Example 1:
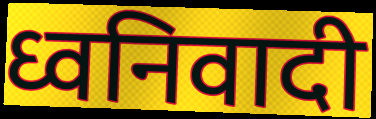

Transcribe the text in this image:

ध्वनिवादी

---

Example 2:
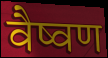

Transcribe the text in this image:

वैष्वण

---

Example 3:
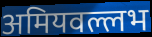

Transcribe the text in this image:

अमियवल्लभ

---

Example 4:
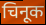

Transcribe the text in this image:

चिनूक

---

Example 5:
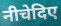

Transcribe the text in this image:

नीचेदिए